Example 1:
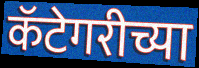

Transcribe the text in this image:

कॅटेगरीच्या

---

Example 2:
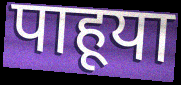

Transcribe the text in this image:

पाहूया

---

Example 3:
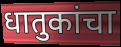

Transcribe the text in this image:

धातुकांचा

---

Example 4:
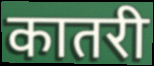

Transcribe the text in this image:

कातरी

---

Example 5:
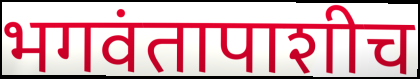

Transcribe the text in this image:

भगवंतापाशीच